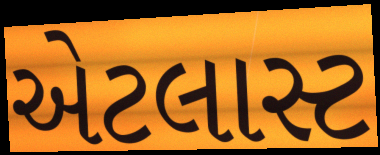
એટલાસ્ટ